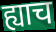
ह्याच